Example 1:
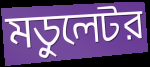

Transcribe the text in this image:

মডুলেটর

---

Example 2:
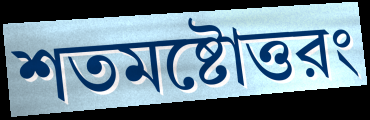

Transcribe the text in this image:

শতমষ্টোত্তরং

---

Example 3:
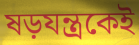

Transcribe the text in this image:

ষড়যন্ত্রকেই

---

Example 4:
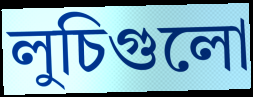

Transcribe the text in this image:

লুচিগুলো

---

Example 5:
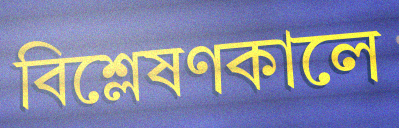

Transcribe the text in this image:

বিশ্লেষণকালে